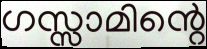
ഗസ്സാമിന്റെ